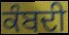
ਕੰਬਦੀ